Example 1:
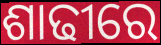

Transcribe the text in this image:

ଶାଢୀରେ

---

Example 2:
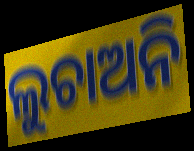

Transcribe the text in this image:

ଲୁଚାଅନି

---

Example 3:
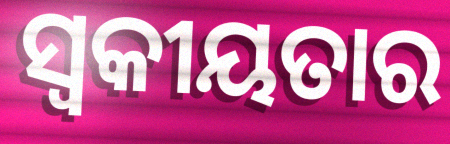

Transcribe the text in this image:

ସ୍ୱକୀୟତାର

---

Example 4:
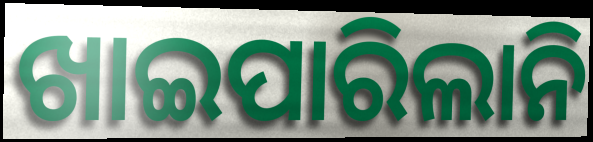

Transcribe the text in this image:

ଖାଇପାରିଲାନି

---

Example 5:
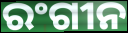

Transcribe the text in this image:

ରଂଗୀନ